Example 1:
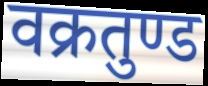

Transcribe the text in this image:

वक्रतुण्ड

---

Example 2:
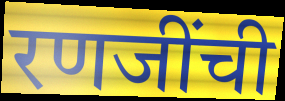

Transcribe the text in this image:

रणजींची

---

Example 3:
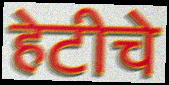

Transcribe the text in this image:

हेटीचे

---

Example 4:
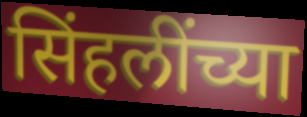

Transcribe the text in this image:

सिंहलींच्या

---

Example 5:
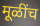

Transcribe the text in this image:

मूळींच